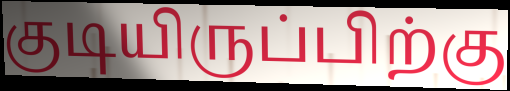
குடியிருப்பிற்கு